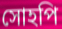
সোহপি